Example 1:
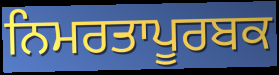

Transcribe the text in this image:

ਨਿਮਰਤਾਪੂਰਬਕ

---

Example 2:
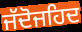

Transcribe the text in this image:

ਜੱਦੋਜਹਿਦ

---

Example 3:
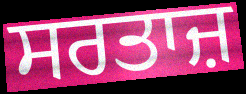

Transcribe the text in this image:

ਸਰਤਾਜ਼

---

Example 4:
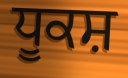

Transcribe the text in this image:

ਧੂਕਸ਼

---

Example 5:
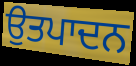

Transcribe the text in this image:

ਉਤਪਾਦਨ